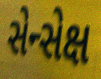
સેન્સેક્ષ